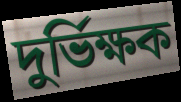
দুৰ্ভিক্ষক